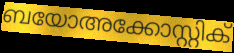
ബയോഅക്കോസ്റ്റിക്